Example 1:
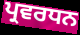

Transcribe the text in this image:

ਪ੍ਰਵਰਧਨ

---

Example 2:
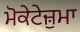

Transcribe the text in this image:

ਮੋਕੇਟੇਜ਼ੁਮਾ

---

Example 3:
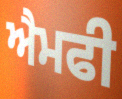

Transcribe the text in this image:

ਐਮਫੀ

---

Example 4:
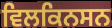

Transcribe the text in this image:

ਵਿਲਕਿਨਸਨ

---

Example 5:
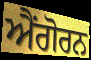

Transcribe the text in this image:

ਐਂਗੋਰਨ